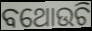
ବଥୋଉଚି